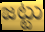
జట్టు